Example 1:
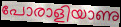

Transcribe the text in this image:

പോരാളിയാണു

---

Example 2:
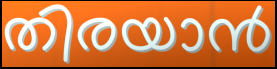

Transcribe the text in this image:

തിരയാൻ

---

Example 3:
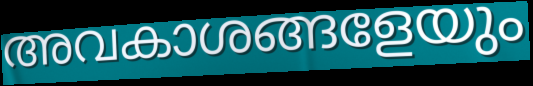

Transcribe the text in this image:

അവകാശങ്ങളേയും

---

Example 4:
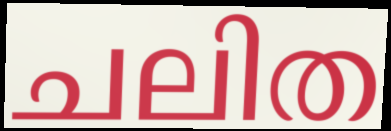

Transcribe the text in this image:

ചലിത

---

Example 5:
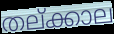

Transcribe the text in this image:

തല്ക്കാല